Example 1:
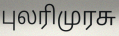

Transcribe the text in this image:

புலரிமுரசு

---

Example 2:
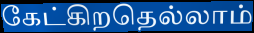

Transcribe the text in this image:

கேட்கிறதெல்லாம்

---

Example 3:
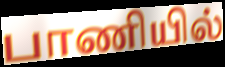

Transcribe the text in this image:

பாணியில்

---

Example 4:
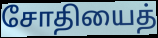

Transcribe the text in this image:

சோதியைத்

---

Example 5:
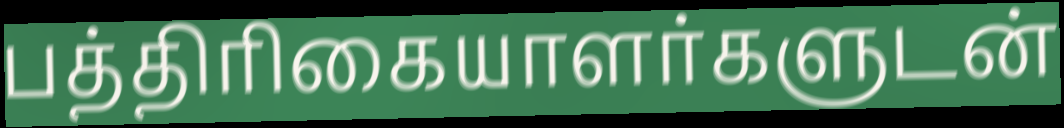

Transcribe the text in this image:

பத்திரிகையாளர்களுடன்